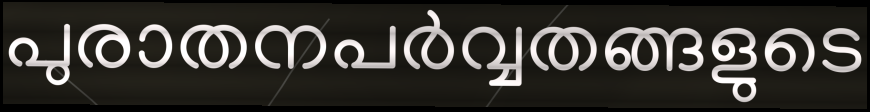
പുരാതനപർവ്വതങ്ങളുടെ